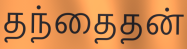
தந்தைதன்